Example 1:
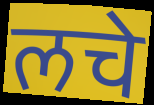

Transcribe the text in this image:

लचे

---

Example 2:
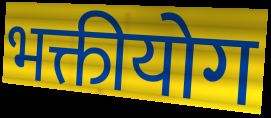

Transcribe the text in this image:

भक्तीयोग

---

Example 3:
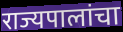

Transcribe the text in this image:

राज्यपालांचा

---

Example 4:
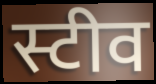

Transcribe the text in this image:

स्टीव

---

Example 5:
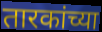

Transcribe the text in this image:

तारकांच्या